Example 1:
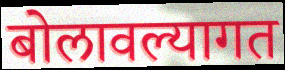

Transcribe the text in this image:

बोलावल्यागत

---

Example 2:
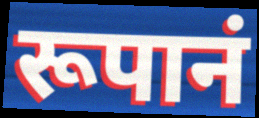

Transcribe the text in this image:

रूपानं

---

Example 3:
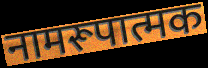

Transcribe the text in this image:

नामरूपात्मक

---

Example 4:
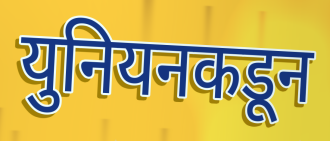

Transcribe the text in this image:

युनियनकडून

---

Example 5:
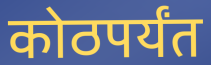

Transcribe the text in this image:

कोठपर्यंत